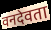
वनदेवता